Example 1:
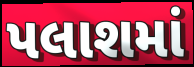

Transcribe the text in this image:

પલાશમાં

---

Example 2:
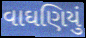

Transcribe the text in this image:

વાઘણિયું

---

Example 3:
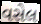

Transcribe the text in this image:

વસેલ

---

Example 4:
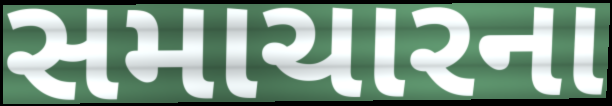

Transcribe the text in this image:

સમાચારના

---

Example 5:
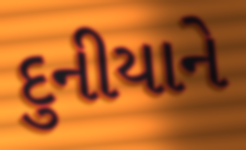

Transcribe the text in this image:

દુનીયાને